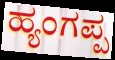
ಹ್ಯಂಗಪ್ಪ